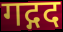
गद्गद